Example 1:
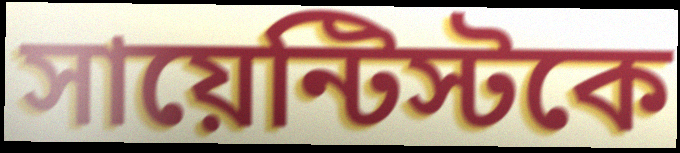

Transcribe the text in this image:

সায়েন্টিস্টকে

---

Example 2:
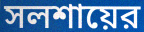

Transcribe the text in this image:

সলশায়ের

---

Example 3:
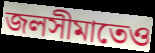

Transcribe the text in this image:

জলসীমাতেও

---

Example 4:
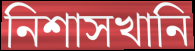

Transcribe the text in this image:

নিশাসখানি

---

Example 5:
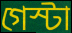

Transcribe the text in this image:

গেস্টা